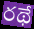
రథే